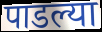
पाडल्या